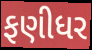
ફણીધર